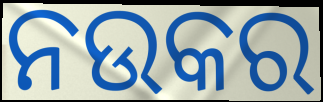
ନଉକର